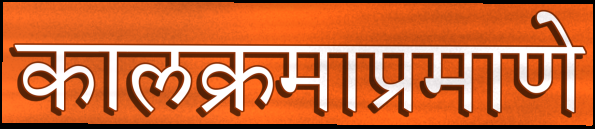
कालक्रमाप्रमाणे